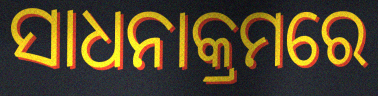
ସାଧନାକ୍ରମରେ